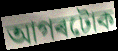
আগৰটোক